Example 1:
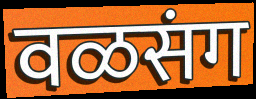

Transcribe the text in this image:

वळसंग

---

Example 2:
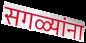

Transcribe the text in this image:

सगळ्यांना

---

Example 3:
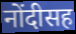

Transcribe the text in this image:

नोंदीसह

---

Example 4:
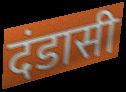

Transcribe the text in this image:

दंडासी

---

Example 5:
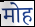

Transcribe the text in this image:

मोह